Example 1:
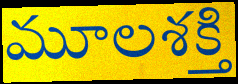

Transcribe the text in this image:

మూలశక్తి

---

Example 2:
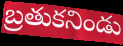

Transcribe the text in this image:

బ్రతుకనిండు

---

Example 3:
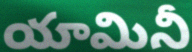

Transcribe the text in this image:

యామినీ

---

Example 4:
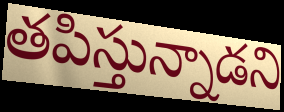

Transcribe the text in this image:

తపిస్తున్నాడని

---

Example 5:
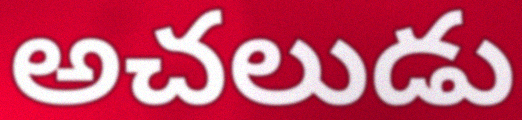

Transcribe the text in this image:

అచలుడు